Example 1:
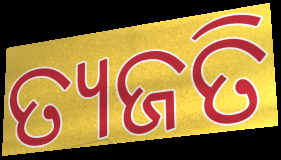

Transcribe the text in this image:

ତ୍ୟଜତି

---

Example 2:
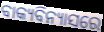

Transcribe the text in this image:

ବାକ୍ୟବିନ୍ୟାସରେ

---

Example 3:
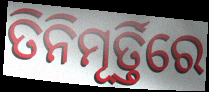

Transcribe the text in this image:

ତିନିମୂର୍ତ୍ତିରେ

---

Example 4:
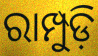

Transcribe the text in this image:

ରାମ୍ପୁଡ଼ି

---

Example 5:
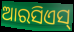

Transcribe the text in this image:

ଆରସିଏସ୍